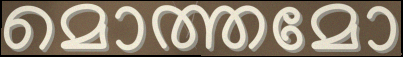
മൊത്തമോ